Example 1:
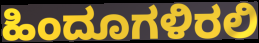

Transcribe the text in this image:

ಹಿಂದೂಗಳಿರಲಿ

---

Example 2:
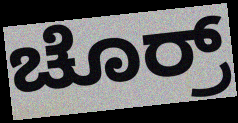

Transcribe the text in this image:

ಚೊರ್ರ್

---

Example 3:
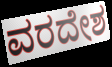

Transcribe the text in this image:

ವರದೇಶ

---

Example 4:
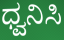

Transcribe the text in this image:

ಧ್ವನಿಸಿ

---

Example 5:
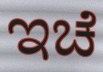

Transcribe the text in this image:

ಇಚೆ